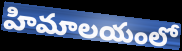
హిమాలయంలో